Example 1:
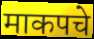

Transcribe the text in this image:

माकपचे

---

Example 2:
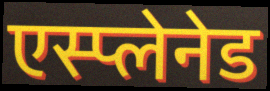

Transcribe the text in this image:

एस्प्लेनेड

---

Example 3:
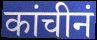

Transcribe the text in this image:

कांचीनं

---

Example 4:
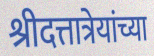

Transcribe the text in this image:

श्रीदत्तात्रेयांच्या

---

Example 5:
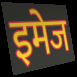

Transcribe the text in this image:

इमेज